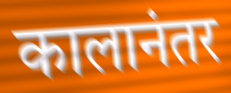
कालानंतर